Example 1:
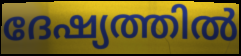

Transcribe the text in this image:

ദേഷ്യത്തിൽ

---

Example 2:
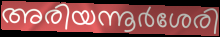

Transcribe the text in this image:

അരിയന്നൂർശേരി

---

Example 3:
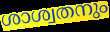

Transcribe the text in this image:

ശാശ്വതനും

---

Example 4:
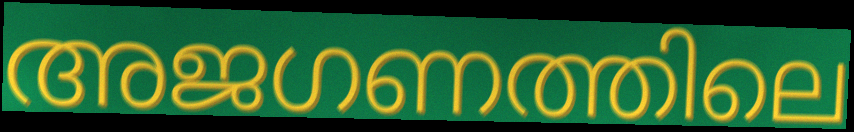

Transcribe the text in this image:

അജഗണത്തിലെ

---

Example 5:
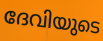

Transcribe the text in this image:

ദേവിയുടെ